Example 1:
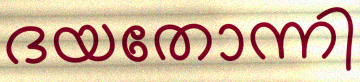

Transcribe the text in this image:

ദയതോന്നി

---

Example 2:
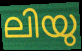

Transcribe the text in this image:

ലിയു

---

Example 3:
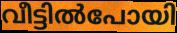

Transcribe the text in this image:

വീട്ടിൽപോയി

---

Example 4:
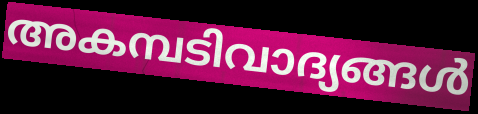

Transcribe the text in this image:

അകമ്പടിവാദ്യങ്ങൾ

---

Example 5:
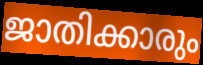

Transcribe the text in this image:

ജാതിക്കാരും